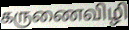
கருணைவிழி